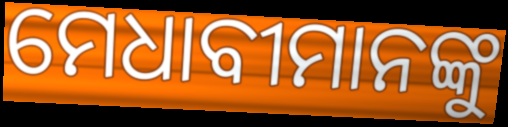
ମେଧାବୀମାନଙ୍କୁ